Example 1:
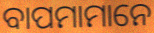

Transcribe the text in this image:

ବାପମାମାନେ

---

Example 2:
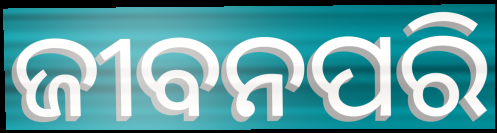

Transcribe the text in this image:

ଜୀବନପରି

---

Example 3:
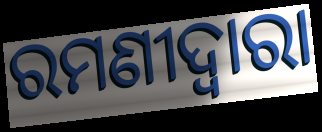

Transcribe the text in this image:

ରମଣୀଦ୍ୱାରା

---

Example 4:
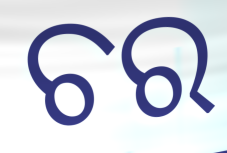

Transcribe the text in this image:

ଚର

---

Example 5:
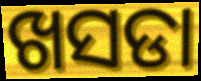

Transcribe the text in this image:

ଖସଡା